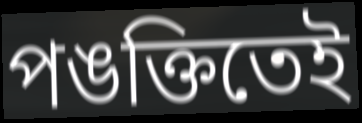
পঙক্তিতেই